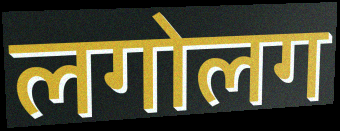
लगोलग